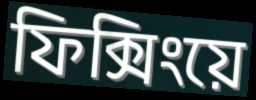
ফিক্সিংয়ে